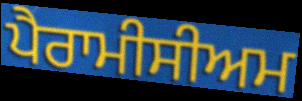
ਪੈਰਾਮੀਸੀਅਮ